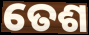
ତେଶ